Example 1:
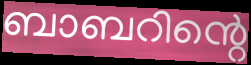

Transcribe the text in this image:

ബാബറിന്റെ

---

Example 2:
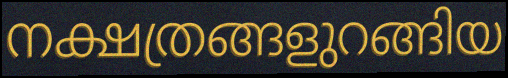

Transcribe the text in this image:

നക്ഷത്രങ്ങളുറങ്ങിയ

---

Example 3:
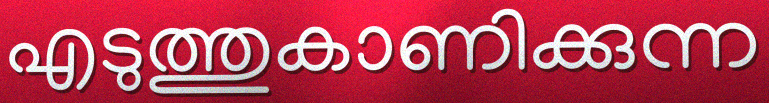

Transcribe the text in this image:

എടുത്തുകാണിക്കുന്ന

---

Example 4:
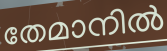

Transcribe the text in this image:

തേമാനിൽ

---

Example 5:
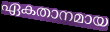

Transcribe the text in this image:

ഏകതാനമായ